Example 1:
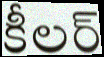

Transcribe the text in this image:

కీలర్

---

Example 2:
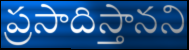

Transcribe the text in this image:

ప్రసాదిస్తానని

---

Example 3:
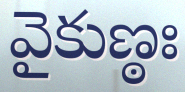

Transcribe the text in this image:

వైకుణ్ఠః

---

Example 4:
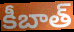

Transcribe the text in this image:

కీబాత్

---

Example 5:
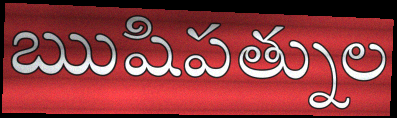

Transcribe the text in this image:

ఋషిపత్నుల